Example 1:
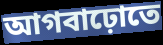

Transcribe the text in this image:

আগবাঢ়োতে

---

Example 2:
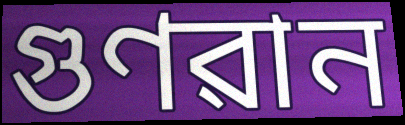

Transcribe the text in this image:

গুণৱান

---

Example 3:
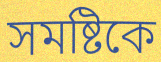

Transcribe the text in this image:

সমষ্টিকে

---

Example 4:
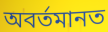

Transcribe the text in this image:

অবৰ্তমানত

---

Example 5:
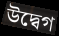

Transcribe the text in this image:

উদ্বেগ